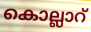
കൊല്ലാറ്